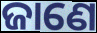
ଜାଣେ